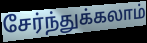
சேர்ந்துக்கலாம்